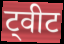
ट्वीट